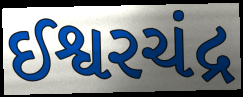
ઈશ્વરચંદ્ર